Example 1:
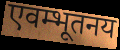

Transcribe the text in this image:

एवम्भूतनय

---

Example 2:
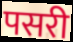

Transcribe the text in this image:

पसरी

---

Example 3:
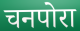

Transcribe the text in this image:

चनपोरा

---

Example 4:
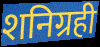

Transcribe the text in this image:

शनिग्रही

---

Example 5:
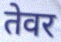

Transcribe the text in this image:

तेवर